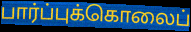
பார்ப்புக்கொலைப்